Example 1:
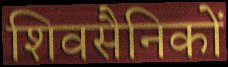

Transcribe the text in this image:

शिवसैनिकों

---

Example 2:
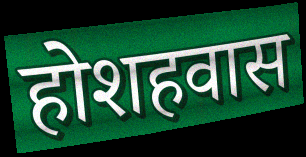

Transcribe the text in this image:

होशहवास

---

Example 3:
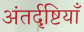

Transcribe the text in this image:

अंतर्दृष्टियाँ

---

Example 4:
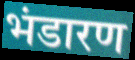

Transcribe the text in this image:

भंडारण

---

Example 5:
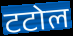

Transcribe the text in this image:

टटोल